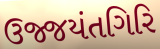
ઉજ્જયંતગિરિ